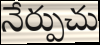
నేర్పుచు